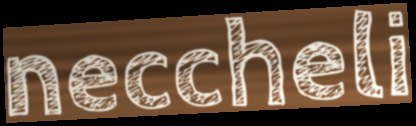
neccheli